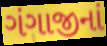
ગંગાજીનાં